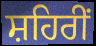
ਸ਼ਹਿਰੀਂ